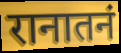
रानातनं